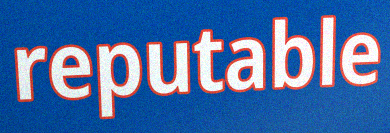
reputable